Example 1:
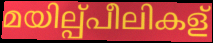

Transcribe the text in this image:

മയില്പ്പീലികള്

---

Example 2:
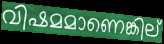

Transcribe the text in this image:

വിഷമമാണെങ്കില്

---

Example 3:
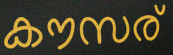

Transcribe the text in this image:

കൗസര്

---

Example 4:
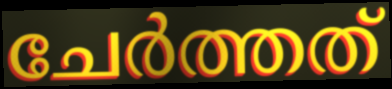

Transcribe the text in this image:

ചേർത്തത്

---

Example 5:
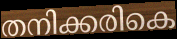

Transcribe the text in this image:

തനിക്കരികെ